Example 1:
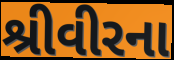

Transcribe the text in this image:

શ્રીવીરના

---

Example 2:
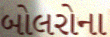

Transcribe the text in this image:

બોલરોના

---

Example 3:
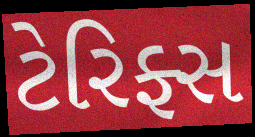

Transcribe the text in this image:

ટેરિફ્સ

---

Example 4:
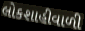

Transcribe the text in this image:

લોકશાહીવાળી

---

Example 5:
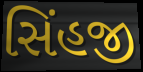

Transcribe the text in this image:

સિંહજી